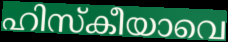
ഹിസ്കീയാവെ